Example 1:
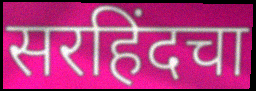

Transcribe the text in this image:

सरहिंदचा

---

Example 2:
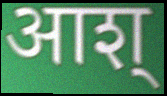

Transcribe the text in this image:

आश्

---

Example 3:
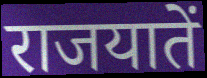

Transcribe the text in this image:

राजयातें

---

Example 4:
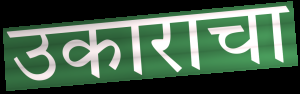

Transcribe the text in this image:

उकाराचा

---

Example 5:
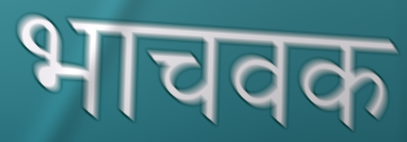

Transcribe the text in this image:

भाचवक